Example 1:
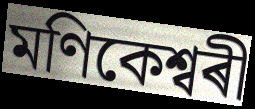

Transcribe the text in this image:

মণিকেশ্বৰী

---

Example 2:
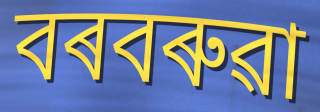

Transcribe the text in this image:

বৰবৰুৱা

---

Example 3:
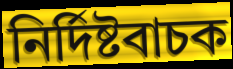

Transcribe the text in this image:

নিৰ্দিষ্টবাচক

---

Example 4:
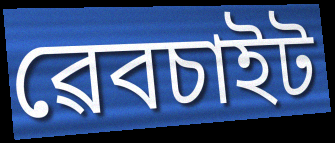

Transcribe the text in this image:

ৱেবচাইট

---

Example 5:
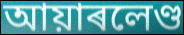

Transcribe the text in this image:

আয়াৰলেণ্ড